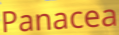
Panacea